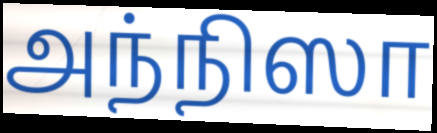
அந்நிஸா